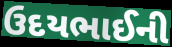
ઉદયભાઈની